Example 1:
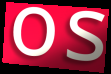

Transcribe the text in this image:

os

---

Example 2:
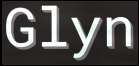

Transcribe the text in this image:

Glyn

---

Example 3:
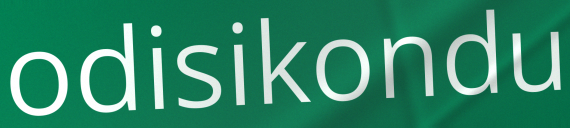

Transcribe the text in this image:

odisikondu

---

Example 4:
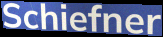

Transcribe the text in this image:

Schiefner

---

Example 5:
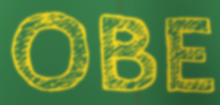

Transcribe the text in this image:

OBE